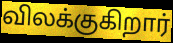
விலக்குகிறார்